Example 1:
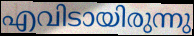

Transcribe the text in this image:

എവിടായിരുന്നു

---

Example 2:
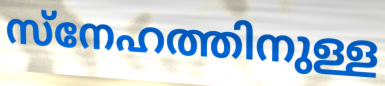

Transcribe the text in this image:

സ്നേഹത്തിനുള്ള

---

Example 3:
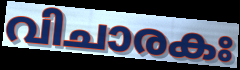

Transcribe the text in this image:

വിചാരകഃ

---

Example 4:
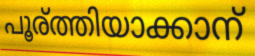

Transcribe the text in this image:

പൂര്ത്തിയാക്കാന്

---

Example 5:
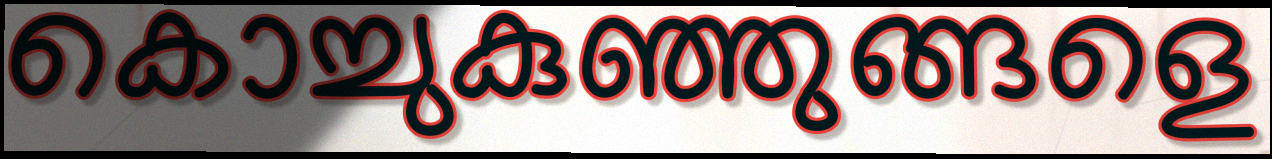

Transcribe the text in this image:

കൊച്ചുകുഞ്ഞുങ്ങളെ